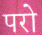
परो